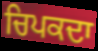
ਚਿਪਕਦਾ